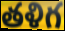
తళిగ